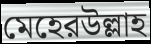
মেহেরউল্লাহ